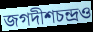
জগদীশচন্দ্রও